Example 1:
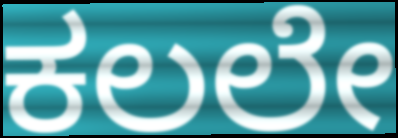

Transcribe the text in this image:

ಕಲಲೇ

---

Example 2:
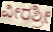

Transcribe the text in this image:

ವೀರಶ್ರೀ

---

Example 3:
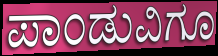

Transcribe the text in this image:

ಪಾಂಡುವಿಗೂ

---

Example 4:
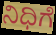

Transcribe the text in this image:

ನಿಧಿಗೆ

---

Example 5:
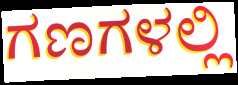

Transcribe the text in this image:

ಗಣಗಳಲ್ಲಿ